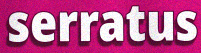
serratus